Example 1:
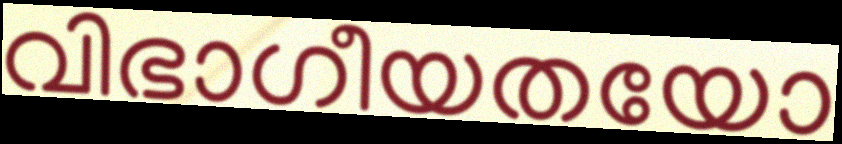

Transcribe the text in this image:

വിഭാഗീയതയോ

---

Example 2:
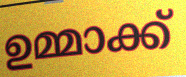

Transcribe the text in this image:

ഉമ്മാക്ക്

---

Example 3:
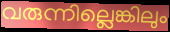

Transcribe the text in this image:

വരുന്നില്ലെങ്കിലും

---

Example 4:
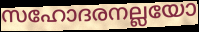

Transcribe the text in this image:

സഹോദരനല്ലയോ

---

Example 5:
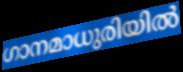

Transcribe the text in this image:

ഗാനമാധുരിയിൽ